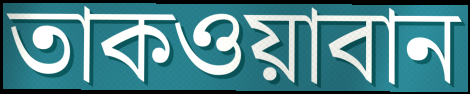
তাকওয়াবান